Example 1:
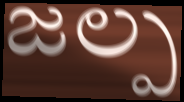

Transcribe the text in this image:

జల్ప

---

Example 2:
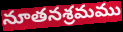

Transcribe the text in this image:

నూతనశ్రమము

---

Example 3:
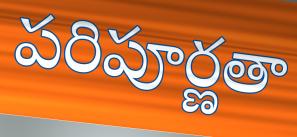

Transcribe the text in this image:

పరిపూర్ణతా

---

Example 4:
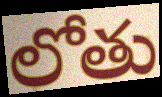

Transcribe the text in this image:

లోతు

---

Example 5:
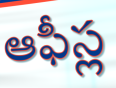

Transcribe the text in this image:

ఆఫీస్ల